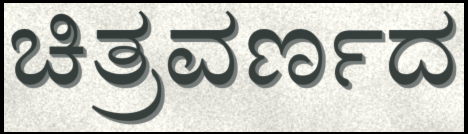
ಚಿತ್ರವರ್ಣದ